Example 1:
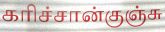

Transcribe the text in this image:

கரிச்சான்குஞ்சு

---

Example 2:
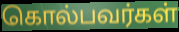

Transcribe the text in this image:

கொல்பவர்கள்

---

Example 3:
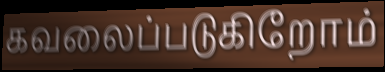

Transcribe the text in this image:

கவலைப்படுகிறோம்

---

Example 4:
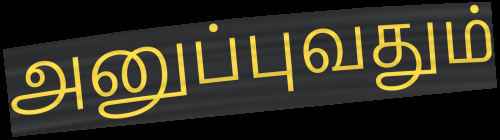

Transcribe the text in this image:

அனுப்புவதும்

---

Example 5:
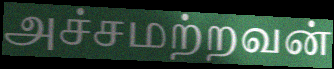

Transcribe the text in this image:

அச்சமற்றவன்